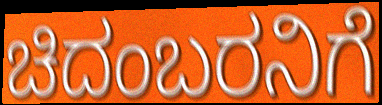
ಚಿದಂಬರನಿಗೆ